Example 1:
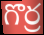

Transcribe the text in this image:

గొర్ర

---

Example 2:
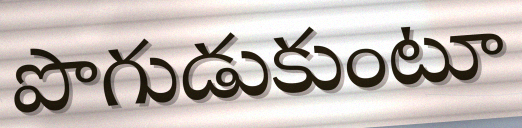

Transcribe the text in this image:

పొగుడుకుంటూ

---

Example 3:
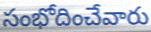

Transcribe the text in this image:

సంభోదించేవారు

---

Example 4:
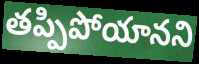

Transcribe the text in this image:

తప్పిపోయానని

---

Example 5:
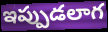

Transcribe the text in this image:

ఇప్పుడలాగ